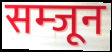
सम्जून